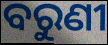
ବରୁଣୀ